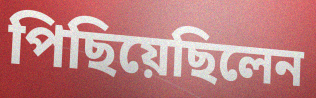
পিছিয়েছিলেন